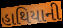
હાથિયાની